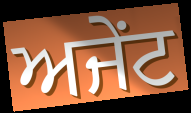
ਅਜੇਂਟ